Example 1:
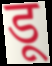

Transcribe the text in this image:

डू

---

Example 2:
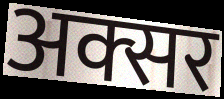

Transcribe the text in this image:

अक्‍सर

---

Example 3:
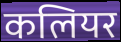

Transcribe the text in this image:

कलियर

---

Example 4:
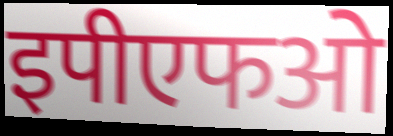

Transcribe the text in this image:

इपीएफओ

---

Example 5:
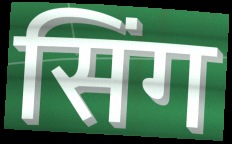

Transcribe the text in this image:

सिंग